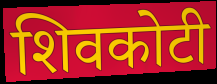
शिवकोटी